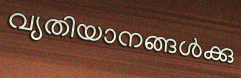
വ്യതിയാനങ്ങൾക്കു